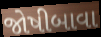
જોષીબાવા